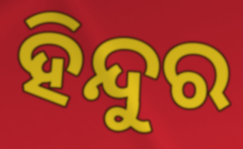
ହିନ୍ଦୁର